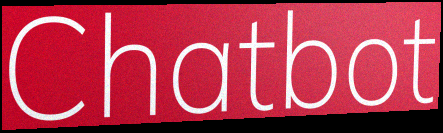
Chatbot